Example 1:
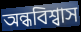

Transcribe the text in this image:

অন্ধবিশ্বাস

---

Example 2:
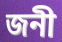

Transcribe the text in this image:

জনী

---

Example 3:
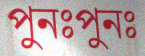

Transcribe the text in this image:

পুনঃপুনঃ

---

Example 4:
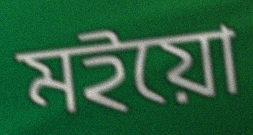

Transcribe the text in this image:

মইয়ো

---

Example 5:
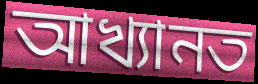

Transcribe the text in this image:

আখ্যানত